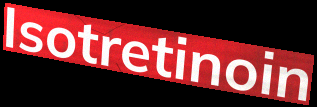
Isotretinoin